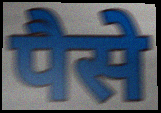
पैसे